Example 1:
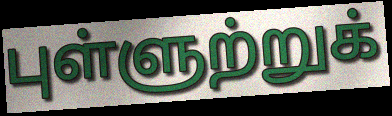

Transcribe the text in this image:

புள்ளுற்றுக்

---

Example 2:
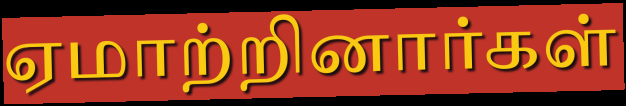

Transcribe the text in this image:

ஏமாற்றினார்கள்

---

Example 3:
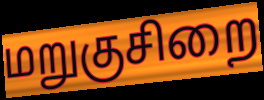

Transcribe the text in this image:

மறுகுசிறை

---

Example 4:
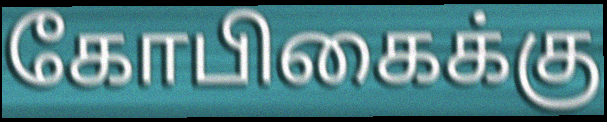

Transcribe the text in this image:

கோபிகைக்கு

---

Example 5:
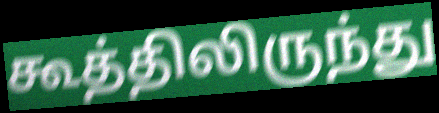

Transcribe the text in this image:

கூத்திலிருந்து